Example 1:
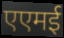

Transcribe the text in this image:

एएमई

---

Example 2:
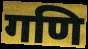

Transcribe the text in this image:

गणि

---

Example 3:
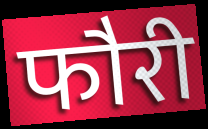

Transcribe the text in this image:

फौरी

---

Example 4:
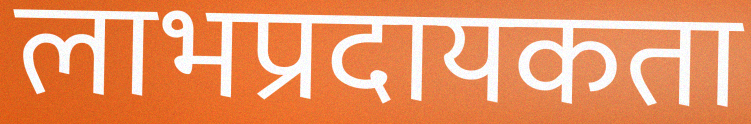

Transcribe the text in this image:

लाभप्रदायकता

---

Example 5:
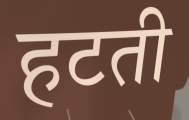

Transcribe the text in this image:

हटती